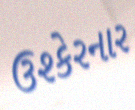
ઉશ્કેરનાર